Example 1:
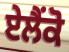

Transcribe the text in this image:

ਏਲੈਂਕੋ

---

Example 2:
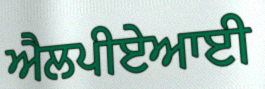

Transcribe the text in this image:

ਐਲਪੀਏਆਈ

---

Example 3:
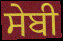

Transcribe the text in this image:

ਸੇਬੀ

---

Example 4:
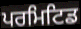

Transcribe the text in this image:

ਪਰਮਿਟਿਡ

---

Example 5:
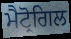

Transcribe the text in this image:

ਮੈਟ੍ਰੋਗਿਲ